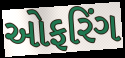
ઓફરિંગ